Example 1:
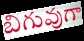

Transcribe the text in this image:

బిగువుగా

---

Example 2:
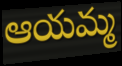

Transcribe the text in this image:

ఆయమ్మ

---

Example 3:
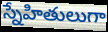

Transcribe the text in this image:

స్నేహితులుగా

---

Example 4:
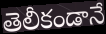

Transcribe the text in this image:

తెలీకండానే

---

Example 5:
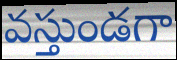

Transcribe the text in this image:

వస్తుండగా